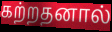
கற்றதனால்